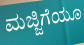
ಮಜ್ಜಿಗೆಯೂ